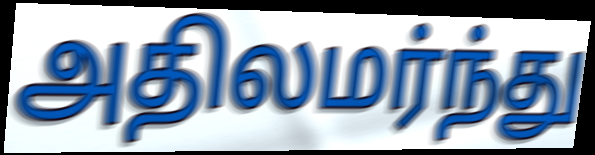
அதிலமர்ந்து